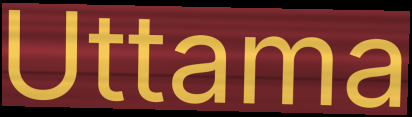
Uttama